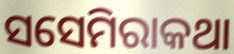
ସସେମିରାକଥା